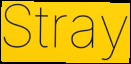
Stray